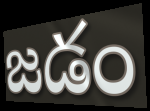
జడం